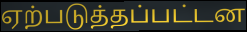
ஏற்படுத்தப்பட்டன